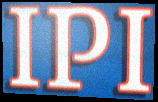
IPI